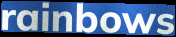
rainbows